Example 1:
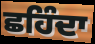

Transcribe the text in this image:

ਛਹਿੰਦਾ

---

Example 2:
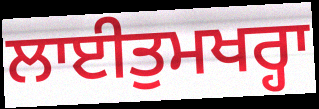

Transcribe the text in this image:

ਲਾਈਤੁਮਖਰ੍ਹਾ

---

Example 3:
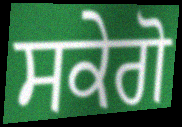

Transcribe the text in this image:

ਸਕੇਗੋ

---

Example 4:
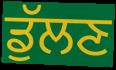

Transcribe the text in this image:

ਡੁੱਲਣ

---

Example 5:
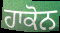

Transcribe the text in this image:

ਹਾਕੋਨ